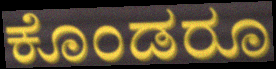
ಕೊಂಡರೂ